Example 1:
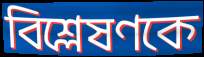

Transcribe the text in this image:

বিশ্লেষণকে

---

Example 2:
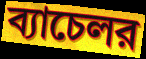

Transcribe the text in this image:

ব্যাচেলর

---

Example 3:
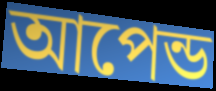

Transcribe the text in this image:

আপেন্ড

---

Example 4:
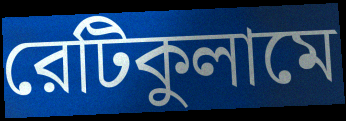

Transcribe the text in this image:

রেটিকুলামে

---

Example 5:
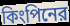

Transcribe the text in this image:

কিংপিনের